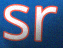
sr